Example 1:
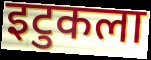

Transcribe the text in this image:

इटुकला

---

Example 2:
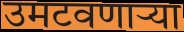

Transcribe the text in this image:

उमटवणार्‍या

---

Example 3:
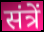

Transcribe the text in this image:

संत्रें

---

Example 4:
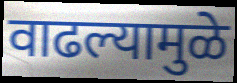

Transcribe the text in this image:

वाढल्यामुळे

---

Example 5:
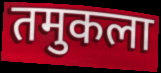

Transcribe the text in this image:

तमुकला